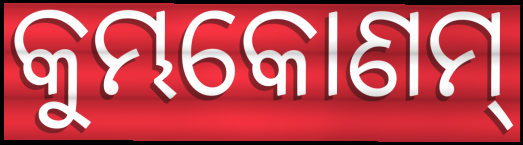
କୁମ୍ଭକୋଣମ୍